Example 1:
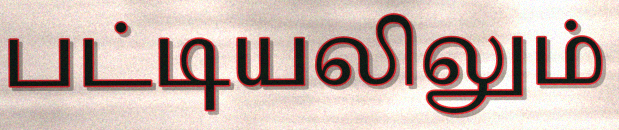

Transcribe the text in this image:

பட்டியலிலும்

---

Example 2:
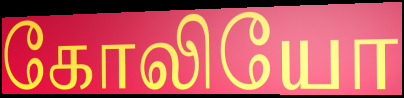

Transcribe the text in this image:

கோலியோ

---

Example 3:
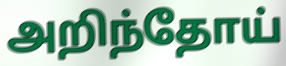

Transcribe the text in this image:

அறிந்தோய்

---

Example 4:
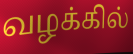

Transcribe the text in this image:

வழக்கில்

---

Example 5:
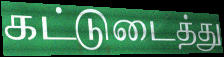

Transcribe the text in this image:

கட்டுடைத்து